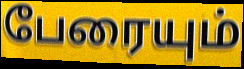
பேரையும்